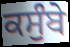
ਕਸੁੰਬੇ